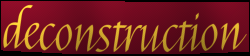
deconstruction